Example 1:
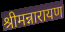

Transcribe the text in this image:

श्रीमन्नारायण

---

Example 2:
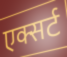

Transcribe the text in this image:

एक्सर्ट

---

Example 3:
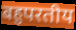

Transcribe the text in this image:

बहुपरतीय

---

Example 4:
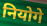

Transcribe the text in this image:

नियोगे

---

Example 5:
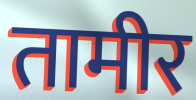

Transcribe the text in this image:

तामीर